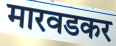
मारवडकर